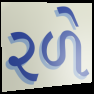
રળે